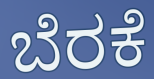
ಬೆರಕೆ